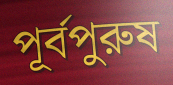
পূর্বপুরুষ